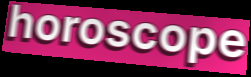
horoscope